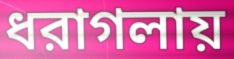
ধরাগলায়